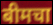
बीमचा